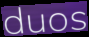
duos